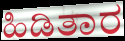
ಹಿಡಿತಾರ